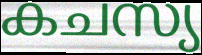
കചസ്യ